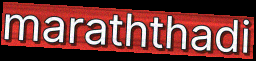
maraththadi